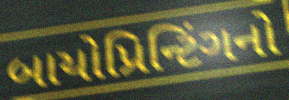
બાયોપ્રિન્ટિંગનો